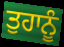
ਤੁਹਾਨੂੰ